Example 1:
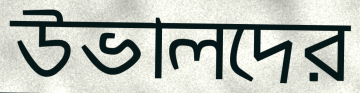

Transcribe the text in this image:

উভালদের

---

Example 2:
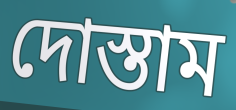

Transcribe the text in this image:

দোস্তাম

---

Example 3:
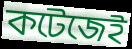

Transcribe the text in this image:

কটেজেই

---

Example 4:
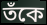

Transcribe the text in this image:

তঁকে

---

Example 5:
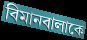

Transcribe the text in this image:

বিমানবালাকে